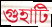
গুহাটি